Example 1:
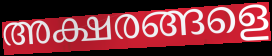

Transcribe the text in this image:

അക്ഷരങ്ങളെ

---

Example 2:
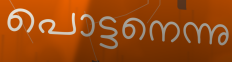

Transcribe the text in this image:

പൊട്ടനെന്നു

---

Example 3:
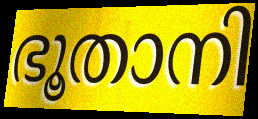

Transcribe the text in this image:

ഭൂതാനി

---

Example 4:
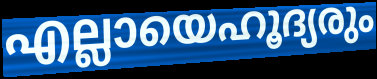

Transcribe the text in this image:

എല്ലായെഹൂദ്യരും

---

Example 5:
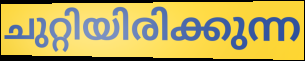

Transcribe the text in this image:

ചുറ്റിയിരിക്കുന്ന